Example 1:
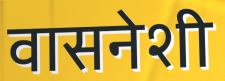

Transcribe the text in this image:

वासनेशी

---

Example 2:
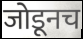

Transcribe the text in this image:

जोडूनच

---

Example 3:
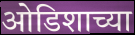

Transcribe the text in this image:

ओडिशाच्या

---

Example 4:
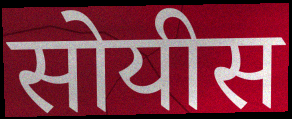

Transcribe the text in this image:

सोयीस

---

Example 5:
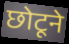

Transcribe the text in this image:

छोटूने